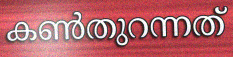
കൺതുറന്നത്